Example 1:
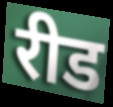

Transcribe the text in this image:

रीड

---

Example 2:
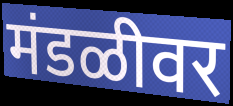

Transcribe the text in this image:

मंडळीवर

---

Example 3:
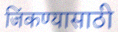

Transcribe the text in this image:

जिंकण्यासाठी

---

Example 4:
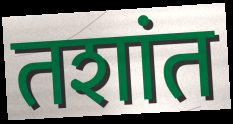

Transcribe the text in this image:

तशांत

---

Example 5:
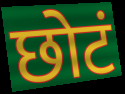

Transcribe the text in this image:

छोटं